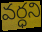
వర్ధని